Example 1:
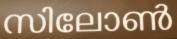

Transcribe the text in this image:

സിലോൺ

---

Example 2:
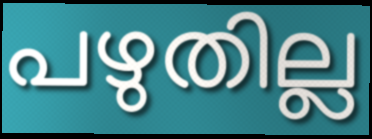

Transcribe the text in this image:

പഴുതില്ല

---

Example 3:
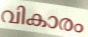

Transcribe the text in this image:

വികാരം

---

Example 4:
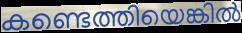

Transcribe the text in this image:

കണ്ടെത്തിയെങ്കിൽ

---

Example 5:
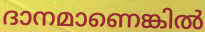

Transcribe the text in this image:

ദാനമാണെങ്കിൽ